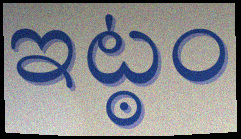
ఇట్ఠం